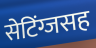
सेटिंग्जसह